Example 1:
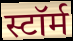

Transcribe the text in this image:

स्टॉर्म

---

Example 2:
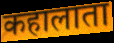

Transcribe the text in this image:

कहालाता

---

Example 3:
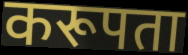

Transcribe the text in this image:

करूपता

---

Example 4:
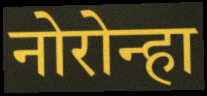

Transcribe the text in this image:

नोरोन्हा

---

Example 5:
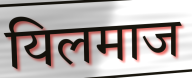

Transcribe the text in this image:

यिलमाज